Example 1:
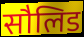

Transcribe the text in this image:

सौलिड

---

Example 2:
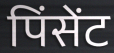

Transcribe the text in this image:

पिंसेंट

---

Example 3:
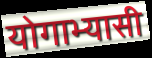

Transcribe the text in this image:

योगाभ्यासी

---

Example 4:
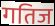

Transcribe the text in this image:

गतिज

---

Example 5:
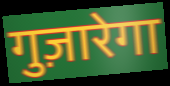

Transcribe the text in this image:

गुज़ारेगा